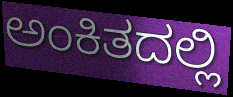
ಅಂಕಿತದಲ್ಲಿ